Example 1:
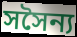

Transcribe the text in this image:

সসৈন্য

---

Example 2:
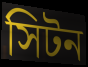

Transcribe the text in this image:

সিটন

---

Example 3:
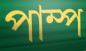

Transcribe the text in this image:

পাম্প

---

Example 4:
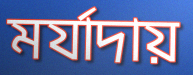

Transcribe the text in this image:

মর্যাদায়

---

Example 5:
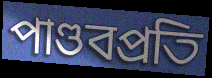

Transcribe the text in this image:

পাণ্ডবপ্রতি